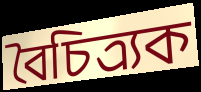
বৈচিত্ৰ্যক